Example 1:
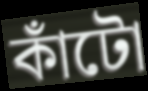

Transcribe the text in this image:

কাঁটো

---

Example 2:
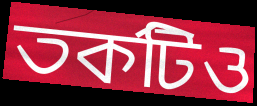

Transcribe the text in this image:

তর্কটিও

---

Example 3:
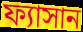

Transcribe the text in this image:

ফ্যাসান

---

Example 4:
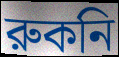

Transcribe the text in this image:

রুকনি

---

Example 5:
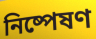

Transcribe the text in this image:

নিষ্পেষণ